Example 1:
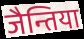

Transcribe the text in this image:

जैन्तिया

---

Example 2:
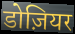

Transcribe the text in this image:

डोज़ियर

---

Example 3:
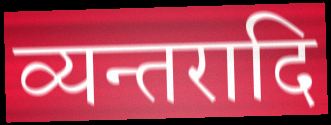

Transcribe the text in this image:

व्यन्तरादि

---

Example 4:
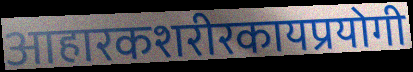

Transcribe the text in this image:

आहारकशरीरकायप्रयोगी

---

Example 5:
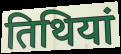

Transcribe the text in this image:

तिथियां